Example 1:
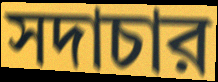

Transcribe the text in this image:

সদাচার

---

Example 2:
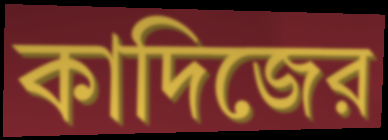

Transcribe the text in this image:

কাদিজের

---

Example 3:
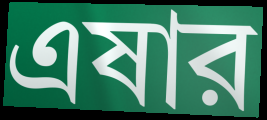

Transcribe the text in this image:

এষার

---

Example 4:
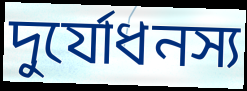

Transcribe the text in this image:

দুর্যোধনস্য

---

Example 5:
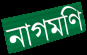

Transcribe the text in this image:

নাগমণি